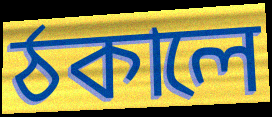
ঠকালে